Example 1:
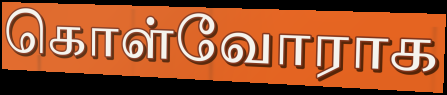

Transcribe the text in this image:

கொள்வோராக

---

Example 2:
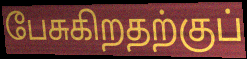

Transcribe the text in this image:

பேசுகிறதற்குப்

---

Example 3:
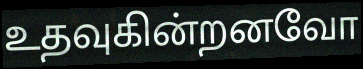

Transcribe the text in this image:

உதவுகின்றனவோ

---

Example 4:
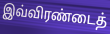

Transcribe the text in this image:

இவ்விரண்டைத்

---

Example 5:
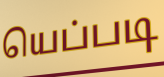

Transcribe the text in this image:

யெப்படி